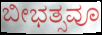
ಬೀಭತ್ಸವೂ